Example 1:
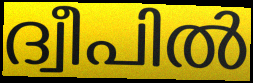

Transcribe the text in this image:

ദ്വീപിൽ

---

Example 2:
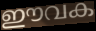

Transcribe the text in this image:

ഈവക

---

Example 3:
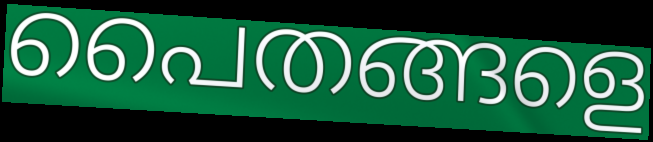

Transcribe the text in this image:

പൈതങ്ങളെ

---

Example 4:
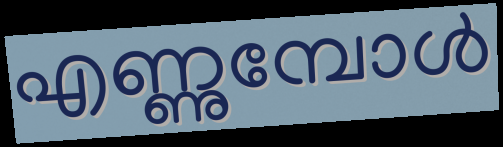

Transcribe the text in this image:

എണ്ണുമ്പോൾ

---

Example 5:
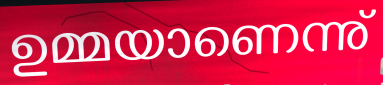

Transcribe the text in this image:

ഉമ്മയാണെന്നു്